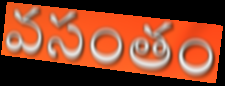
వసంతం